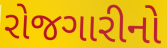
રોજગારીનો